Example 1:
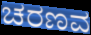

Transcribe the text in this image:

ಚರಣವ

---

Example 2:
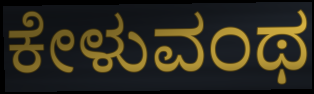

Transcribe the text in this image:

ಕೇಳುವಂಥ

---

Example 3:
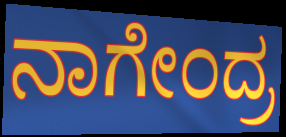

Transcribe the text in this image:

ನಾಗೇಂದ್ರ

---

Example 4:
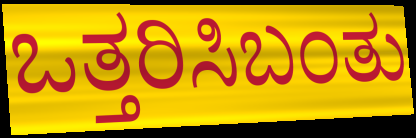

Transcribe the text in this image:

ಒತ್ತರಿಸಿಬಂತು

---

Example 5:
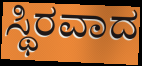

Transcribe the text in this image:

ಸ್ಥಿರವಾದ